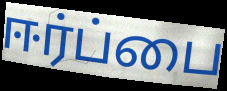
ஈர்ப்பை